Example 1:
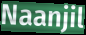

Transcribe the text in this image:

Naanjil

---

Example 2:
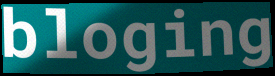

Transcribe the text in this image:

bloging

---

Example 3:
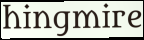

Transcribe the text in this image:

hingmire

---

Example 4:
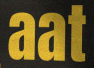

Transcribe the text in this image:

aat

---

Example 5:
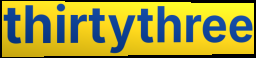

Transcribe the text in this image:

thirtythree